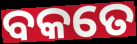
ବକତେ